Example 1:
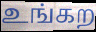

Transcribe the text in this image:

உங்கற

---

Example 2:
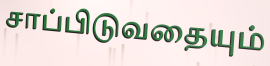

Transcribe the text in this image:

சாப்பிடுவதையும்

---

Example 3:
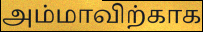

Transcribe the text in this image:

அம்மாவிற்காக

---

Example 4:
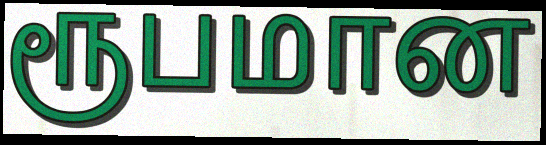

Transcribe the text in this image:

ரூபமான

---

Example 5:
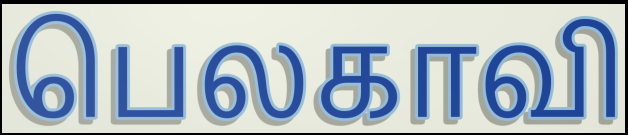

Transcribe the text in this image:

பெலகாவி